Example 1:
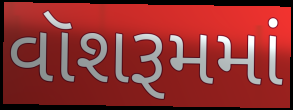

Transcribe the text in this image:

વૉશરૂમમાં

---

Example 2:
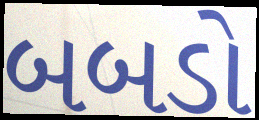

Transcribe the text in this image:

બબડો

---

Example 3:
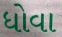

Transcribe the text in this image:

ધોવા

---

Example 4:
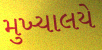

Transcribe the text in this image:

મુખ્યાલયે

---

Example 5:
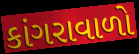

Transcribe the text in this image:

કાંગરાવાળો